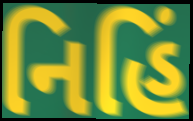
નિહિં